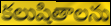
కలుషితాలను